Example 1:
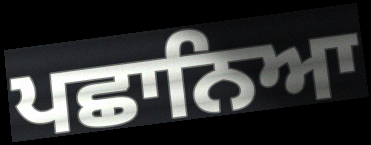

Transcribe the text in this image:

ਪਛਾਨਿਆ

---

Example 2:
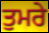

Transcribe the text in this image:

ਤੁਮਰੇ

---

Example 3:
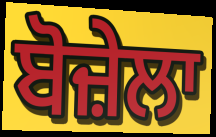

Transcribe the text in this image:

ਬੋਜ਼ੇਲਾ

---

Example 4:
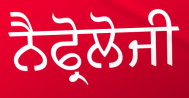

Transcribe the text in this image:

ਨੈਫ੍ਰੋਲੋਜੀ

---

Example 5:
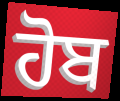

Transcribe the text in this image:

ਹੋਬ